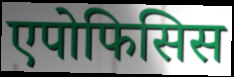
एपोफिसिस